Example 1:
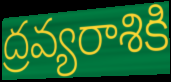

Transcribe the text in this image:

ద్రవ్యరాశికి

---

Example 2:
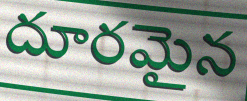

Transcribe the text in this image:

దూరమైన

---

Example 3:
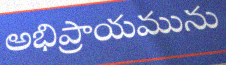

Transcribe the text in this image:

అభిప్రాయమును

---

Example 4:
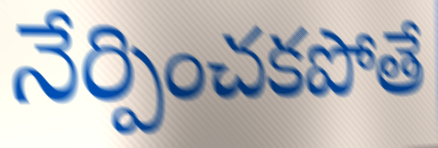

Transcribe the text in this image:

నేర్పించకపోతే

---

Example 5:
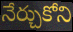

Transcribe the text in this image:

నేర్చుకోని